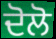
ਦੋਲੋ